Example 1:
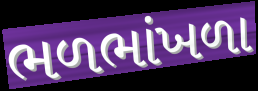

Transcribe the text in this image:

ભળભાંખળા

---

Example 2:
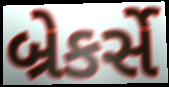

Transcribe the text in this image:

બ્રેકર્સે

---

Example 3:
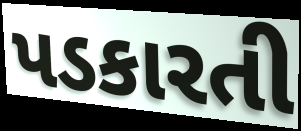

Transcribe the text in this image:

પડકારતી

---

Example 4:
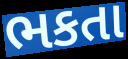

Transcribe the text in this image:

ભકતા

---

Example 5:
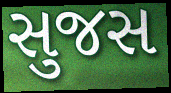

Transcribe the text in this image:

સુજસ